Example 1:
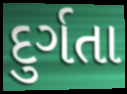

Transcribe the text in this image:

દુર્ગતા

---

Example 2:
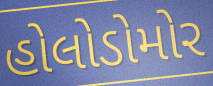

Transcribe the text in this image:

હોલોડોમોર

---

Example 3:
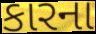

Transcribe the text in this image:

કારના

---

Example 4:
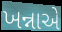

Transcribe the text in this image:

ખન્નાએ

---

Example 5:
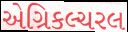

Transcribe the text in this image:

એગ્રિકલ્ચરલ